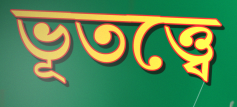
ভূতত্ত্বে